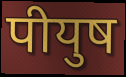
पीयुष